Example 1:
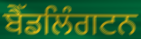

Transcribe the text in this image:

ਬੈੱਡਲਿੰਗਟਨ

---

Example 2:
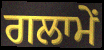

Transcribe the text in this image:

ਗਲਾਮੇਂ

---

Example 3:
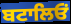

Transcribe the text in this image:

ਬਟਾਲਿਓਂ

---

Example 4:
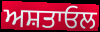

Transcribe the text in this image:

ਅਸ਼ਤਾਓਲ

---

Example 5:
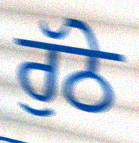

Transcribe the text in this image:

ਰੁੱਠੇ